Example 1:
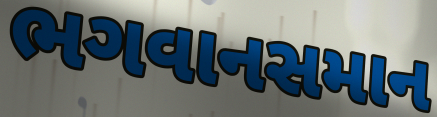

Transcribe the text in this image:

ભગવાનસમાન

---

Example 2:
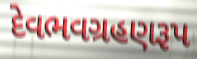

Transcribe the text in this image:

દેવભવગ્રહણરૂપ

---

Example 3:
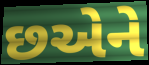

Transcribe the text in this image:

છએને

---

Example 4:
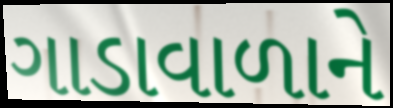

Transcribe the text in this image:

ગાડાવાળાને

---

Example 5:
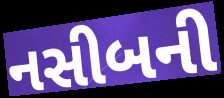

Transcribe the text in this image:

નસીબની